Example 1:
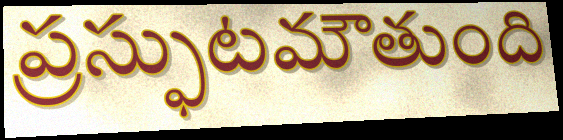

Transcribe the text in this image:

ప్రస్ఫుటమౌతుంది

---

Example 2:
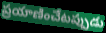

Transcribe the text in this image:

ప్రయాణించేటప్పుడు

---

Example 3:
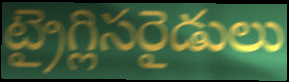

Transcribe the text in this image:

ట్రైగ్లిసరైడులు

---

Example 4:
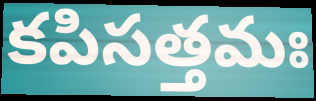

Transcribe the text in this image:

కపిసత్తమః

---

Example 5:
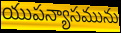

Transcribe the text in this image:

యుపన్యాసమును